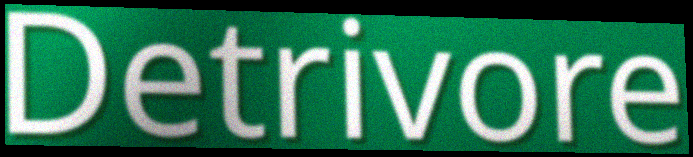
Detrivore